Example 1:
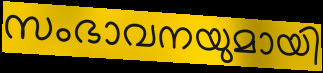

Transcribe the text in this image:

സംഭാവനയുമായി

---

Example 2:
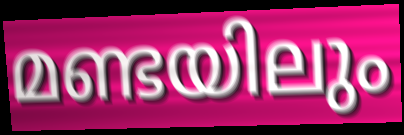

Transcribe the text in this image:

മണ്ടയിലും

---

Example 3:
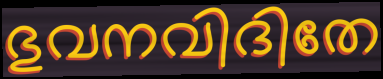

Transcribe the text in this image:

ഭുവനവിദിതേ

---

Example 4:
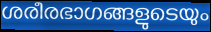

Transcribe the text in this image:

ശരീരഭാഗങ്ങളുടെയും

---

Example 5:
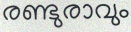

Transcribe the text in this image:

രണ്ടുരാവും